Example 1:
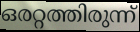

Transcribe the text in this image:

ഒരറ്റത്തിരുന്ന്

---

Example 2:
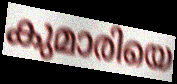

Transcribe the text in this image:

കുമാരിയെ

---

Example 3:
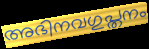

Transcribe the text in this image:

അഭിനവഗുപ്തനം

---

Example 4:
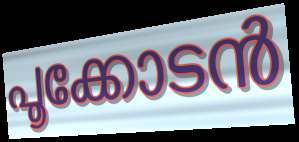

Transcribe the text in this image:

പൂക്കോടൻ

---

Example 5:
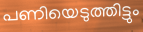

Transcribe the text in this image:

പണിയെടുത്തിട്ടും